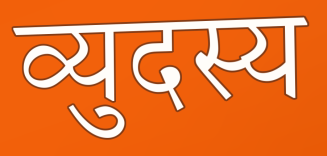
व्युदस्य